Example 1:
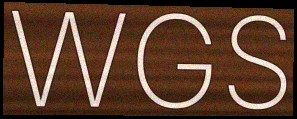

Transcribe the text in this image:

WGS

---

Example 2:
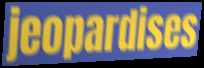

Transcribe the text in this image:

jeopardises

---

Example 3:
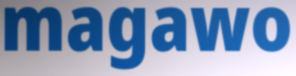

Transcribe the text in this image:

magawo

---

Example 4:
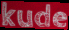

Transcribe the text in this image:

kude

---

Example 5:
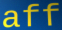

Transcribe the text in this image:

aff